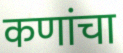
कणांचा